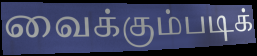
வைக்கும்படிக்